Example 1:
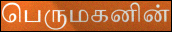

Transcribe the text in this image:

பெருமகனின்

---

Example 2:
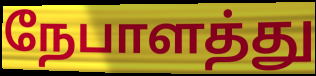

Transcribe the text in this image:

நேபாளத்து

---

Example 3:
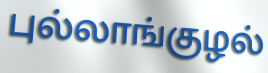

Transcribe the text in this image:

புல்லாங்குழல்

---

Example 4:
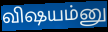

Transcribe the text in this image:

விஷயம்னு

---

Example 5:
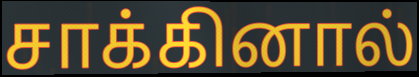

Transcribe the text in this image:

சாக்கினால்